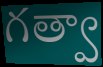
గత్వా